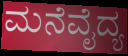
ಮನೆವೈದ್ಯ